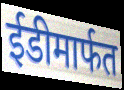
ईडीमार्फत